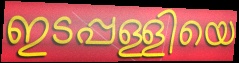
ഇടപ്പള്ളിയെ